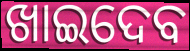
ଖାଇଦେବ